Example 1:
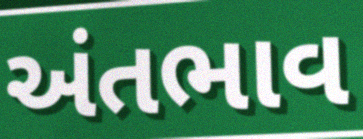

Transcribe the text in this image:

અંતભાવ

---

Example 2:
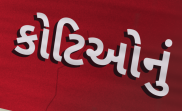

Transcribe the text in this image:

કોટિઓનું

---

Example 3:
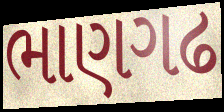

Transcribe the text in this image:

ભાણગઢ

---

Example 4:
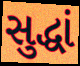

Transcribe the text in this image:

સુદ્ધાં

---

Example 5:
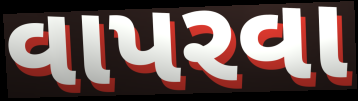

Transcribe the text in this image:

વાપરવા